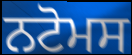
ਨਟੋਮਸ